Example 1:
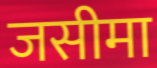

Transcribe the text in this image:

जसीमा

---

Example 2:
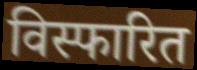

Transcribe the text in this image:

विस्फारित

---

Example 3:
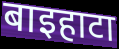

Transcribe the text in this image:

बाइहाटा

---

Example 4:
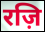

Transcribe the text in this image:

रज़ि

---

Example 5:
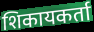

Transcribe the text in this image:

शिकायकर्ता